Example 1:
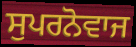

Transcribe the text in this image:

ਸੁਪਰਨੋਵਾਜ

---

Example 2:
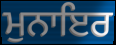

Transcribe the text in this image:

ਮੁਨਾਇਰ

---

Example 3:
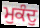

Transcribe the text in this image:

ਮੁਕੰਦੁ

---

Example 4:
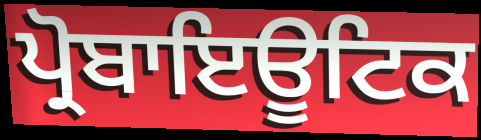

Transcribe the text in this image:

ਪ੍ਰੋਬਾਇਊਟਿਕ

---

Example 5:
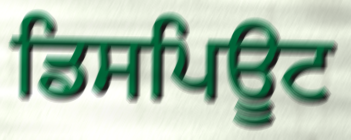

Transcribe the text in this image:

ਡਿਸਪਿਊਟ